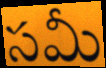
సమీ